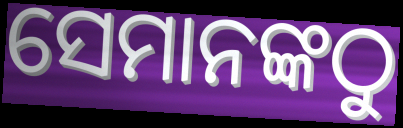
ସେମାନଙ୍କଠୁ